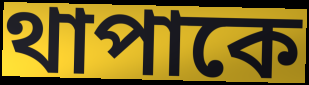
থাপাকে